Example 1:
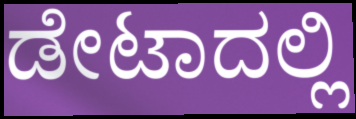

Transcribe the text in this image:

ಡೇಟಾದಲ್ಲಿ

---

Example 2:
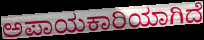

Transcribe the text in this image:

ಅಪಾಯಕಾರಿಯಾಗಿದೆ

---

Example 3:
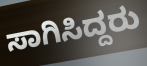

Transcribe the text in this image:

ಸಾಗಿಸಿದ್ದರು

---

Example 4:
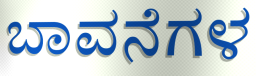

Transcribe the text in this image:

ಬಾವನೆಗಳ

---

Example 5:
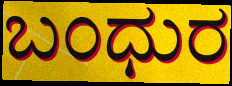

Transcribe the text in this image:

ಬಂಧುರ